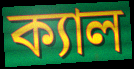
ক্যাল